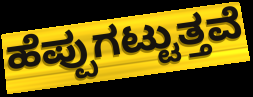
ಹೆಪ್ಪುಗಟ್ಟುತ್ತವೆ